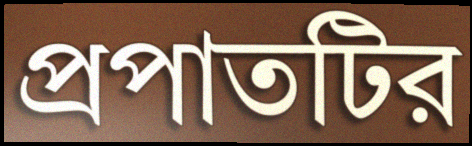
প্রপাতটির